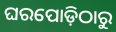
ଘରପୋଡ଼ିଠାରୁ